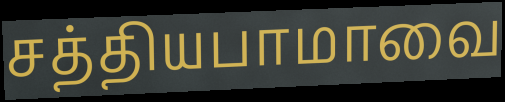
சத்தியபாமாவை